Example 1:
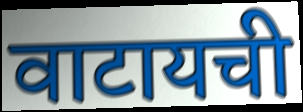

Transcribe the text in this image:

वाटायची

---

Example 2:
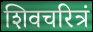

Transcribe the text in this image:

शिवचरित्रं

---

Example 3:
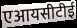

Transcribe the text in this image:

एआयसीटीई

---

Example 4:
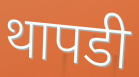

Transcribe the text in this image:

थापडी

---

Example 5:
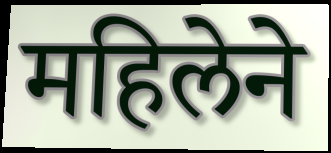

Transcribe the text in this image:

महिलेने